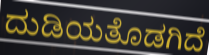
ದುಡಿಯತೊಡಗಿದೆ